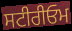
ਸਟੀਰੀਓਮ